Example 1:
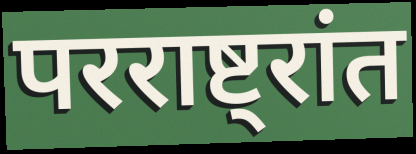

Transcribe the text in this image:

परराष्ट्रांत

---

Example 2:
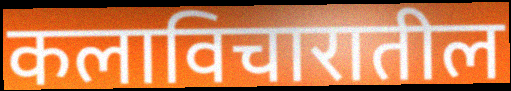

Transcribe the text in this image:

कलाविचारातील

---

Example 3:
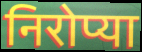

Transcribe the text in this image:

निरोप्या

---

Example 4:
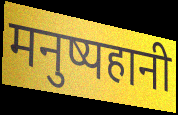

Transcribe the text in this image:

मनुष्यहानी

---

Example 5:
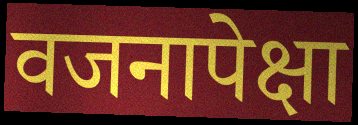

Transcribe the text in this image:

वजनापेक्षा